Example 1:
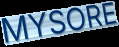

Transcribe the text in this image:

MYSORE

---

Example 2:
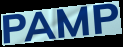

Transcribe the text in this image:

PAMP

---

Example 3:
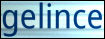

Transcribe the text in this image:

gelince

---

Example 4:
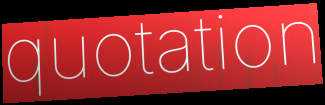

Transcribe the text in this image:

quotation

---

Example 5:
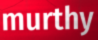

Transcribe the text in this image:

murthy